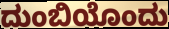
ದುಂಬಿಯೊಂದು